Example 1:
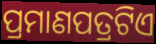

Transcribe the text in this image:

ପ୍ରମାଣପତ୍ରଟିଏ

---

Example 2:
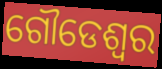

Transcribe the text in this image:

ଗୌଡେଶ୍ୱର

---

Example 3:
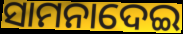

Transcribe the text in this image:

ସାମନାଦେଇ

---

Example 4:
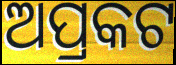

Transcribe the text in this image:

ଅପ୍ରକଟ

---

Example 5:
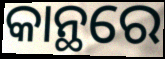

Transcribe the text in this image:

କାନ୍ଥରେ